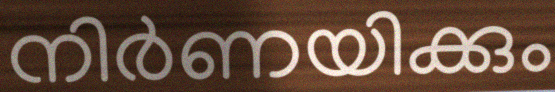
നിർണയിക്കും